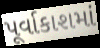
પૂર્વાકાશમાં